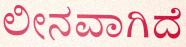
ಲೀನವಾಗಿದೆ